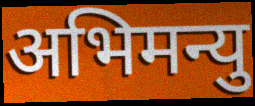
अभिमन्यु